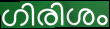
ഗിരിശം